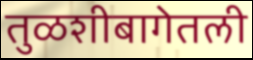
तुळशीबागेतली